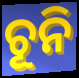
ଚୂନି